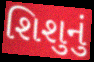
શિશુનું